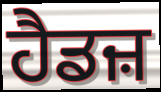
ਹੈਡਜ਼